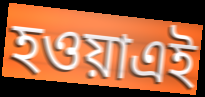
হওয়াএই